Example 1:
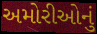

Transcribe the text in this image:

અમોરીઓનું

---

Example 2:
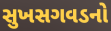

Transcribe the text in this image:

સુખસગવડનો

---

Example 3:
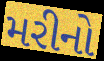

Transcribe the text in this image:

મરીનો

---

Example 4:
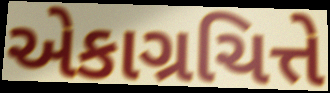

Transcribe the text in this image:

એકાગ્રચિત્તે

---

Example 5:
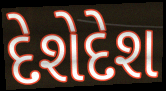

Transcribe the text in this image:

દેશેદેશ